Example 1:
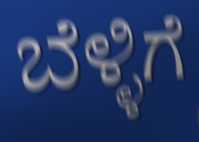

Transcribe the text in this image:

ಬೆಳ್ಳಿಗೆ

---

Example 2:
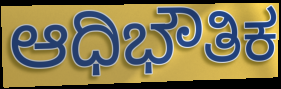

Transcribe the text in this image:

ಆಧಿಭೌತಿಕ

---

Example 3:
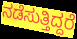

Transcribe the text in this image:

ನಡೆಸುತ್ತಿದ್ದರೆ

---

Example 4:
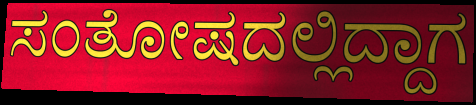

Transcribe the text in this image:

ಸಂತೋಷದಲ್ಲಿದ್ದಾಗ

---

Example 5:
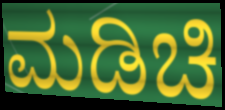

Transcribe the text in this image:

ಮಡಿಚಿ